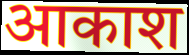
आकाश